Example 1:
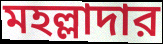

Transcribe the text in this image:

মহল্লাদার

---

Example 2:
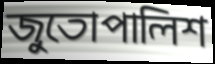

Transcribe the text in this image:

জুতোপালিশ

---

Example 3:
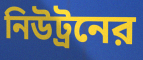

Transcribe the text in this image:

নিউট্রনের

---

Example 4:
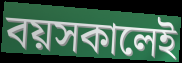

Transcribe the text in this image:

বয়সকালেই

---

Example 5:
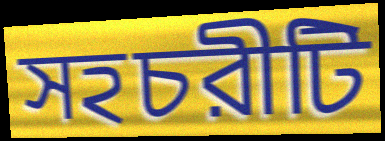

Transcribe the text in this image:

সহচরীটি